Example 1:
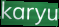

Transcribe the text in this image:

karyu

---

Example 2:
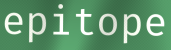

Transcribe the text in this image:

epitope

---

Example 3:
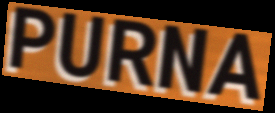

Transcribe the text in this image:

PURNA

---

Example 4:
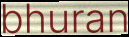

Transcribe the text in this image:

bhuran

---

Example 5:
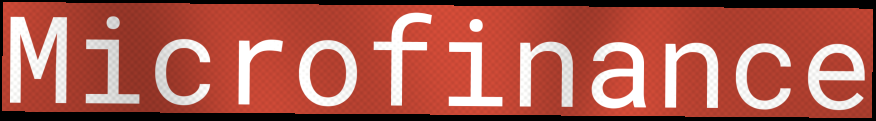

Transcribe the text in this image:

Microfinance